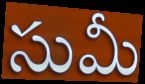
సుమీ